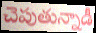
చెపుతున్నాడీ